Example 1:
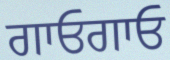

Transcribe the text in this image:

ਗਾਓਗਾਓ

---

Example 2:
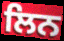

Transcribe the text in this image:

ਲਿਨ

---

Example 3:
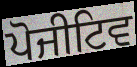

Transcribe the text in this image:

ਪੋਜੀਟਿਵ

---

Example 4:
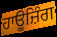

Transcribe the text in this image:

ਹਾਊਜ਼ਿੰਗ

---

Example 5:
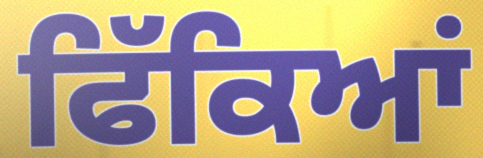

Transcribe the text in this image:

ਫਿੱਕਿਆਂ